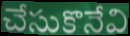
చేసుకొనేవి